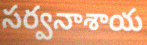
సర్వనాశాయ